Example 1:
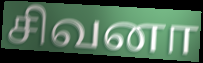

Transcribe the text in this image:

சிவனா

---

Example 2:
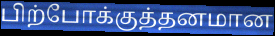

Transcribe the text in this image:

பிற்போக்குத்தனமான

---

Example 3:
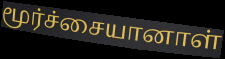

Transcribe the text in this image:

மூர்ச்சையானாள்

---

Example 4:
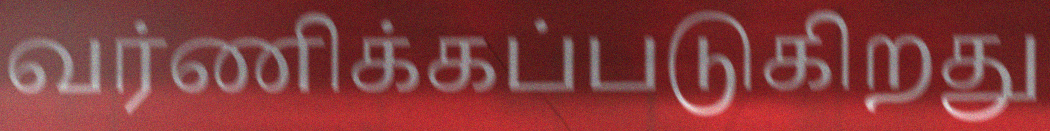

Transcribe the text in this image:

வர்ணிக்கப்படுகிறது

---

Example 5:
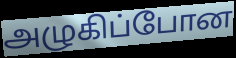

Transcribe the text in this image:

அழுகிப்போன